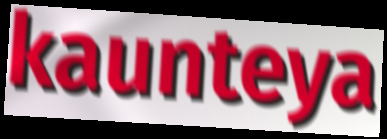
kaunteya